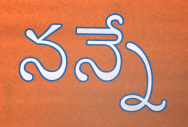
నన్నే